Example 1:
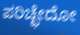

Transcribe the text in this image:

ಪರಿಚ್ಛೇದೋ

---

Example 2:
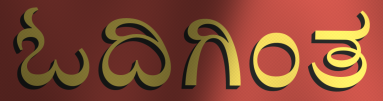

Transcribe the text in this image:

ಓದಿಗಿಂತ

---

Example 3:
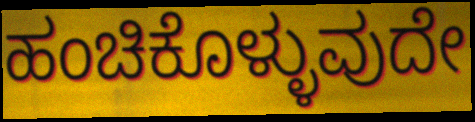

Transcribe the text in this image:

ಹಂಚಿಕೊಳ್ಳುವುದೇ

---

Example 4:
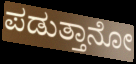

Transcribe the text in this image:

ಪಡುತ್ತಾನೋ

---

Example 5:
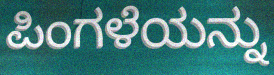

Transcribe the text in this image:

ಪಿಂಗಳೆಯನ್ನು